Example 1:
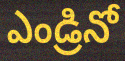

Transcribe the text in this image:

ఎండ్రినో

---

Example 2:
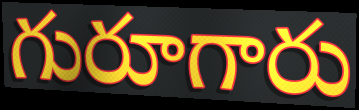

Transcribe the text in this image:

గురూగారు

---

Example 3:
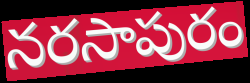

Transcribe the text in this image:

నరసాపురం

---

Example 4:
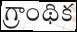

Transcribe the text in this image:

గ్రాంథిక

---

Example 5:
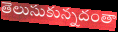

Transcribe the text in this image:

తెలుసుకున్నదంతా